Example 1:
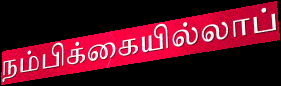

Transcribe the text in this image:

நம்பிக்கையில்லாப்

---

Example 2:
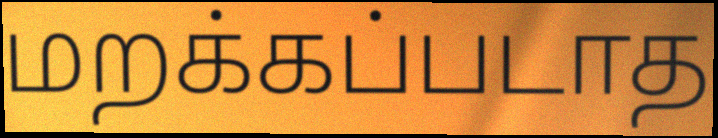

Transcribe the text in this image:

மறக்கப்படாத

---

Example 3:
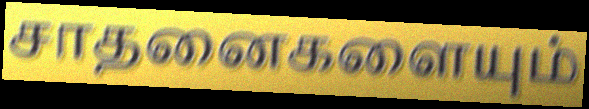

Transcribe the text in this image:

சாதனைகளையும்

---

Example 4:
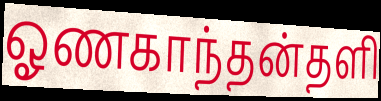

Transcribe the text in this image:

ஓணகாந்தன்தளி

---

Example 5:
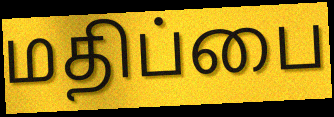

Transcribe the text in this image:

மதிப்பை